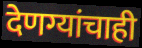
देणग्यांचाही